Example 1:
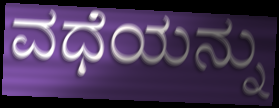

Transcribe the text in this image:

ವಧೆಯನ್ನು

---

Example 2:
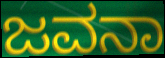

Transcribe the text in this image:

ಜವನಾ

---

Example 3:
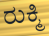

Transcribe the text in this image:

ರುಕ್ಮಿ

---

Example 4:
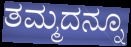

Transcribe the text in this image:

ತಮ್ಮದನ್ನೂ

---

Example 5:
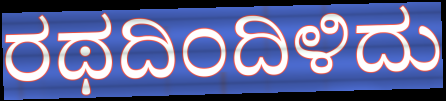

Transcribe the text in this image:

ರಥದಿಂದಿಳಿದು